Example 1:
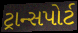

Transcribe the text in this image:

ટ્રાન્સપોર્ટ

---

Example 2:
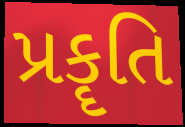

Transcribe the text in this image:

પ્રકૄતિ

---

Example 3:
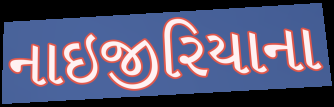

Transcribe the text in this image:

નાઇજીરિયાના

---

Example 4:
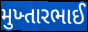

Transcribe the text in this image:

મુખ્તારભાઈ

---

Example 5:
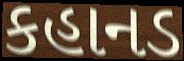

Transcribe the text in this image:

કહાનડ